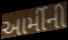
આર્મીની